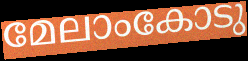
മേലാംകോടു